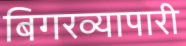
बिगरव्यापारी